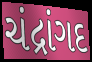
ચંદ્રાંગદ